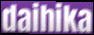
daihika